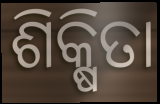
ଶିକ୍ଷିତା